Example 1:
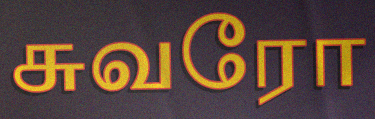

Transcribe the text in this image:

சுவரோ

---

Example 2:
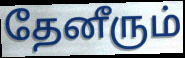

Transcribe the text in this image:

தேனீரும்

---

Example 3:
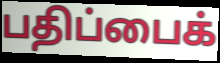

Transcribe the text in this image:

பதிப்பைக்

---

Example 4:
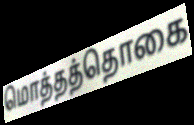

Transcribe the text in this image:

மொத்தத்தொகை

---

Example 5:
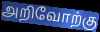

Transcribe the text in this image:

அறிவோற்கு